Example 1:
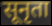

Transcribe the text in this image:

सूनृता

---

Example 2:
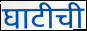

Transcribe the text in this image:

घाटीची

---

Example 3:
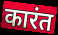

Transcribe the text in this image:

कारंत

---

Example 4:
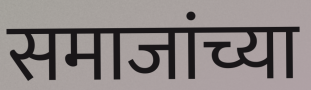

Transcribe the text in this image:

समाजांच्या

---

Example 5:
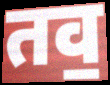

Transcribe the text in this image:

तव॒